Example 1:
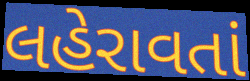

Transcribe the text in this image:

લહેરાવતાં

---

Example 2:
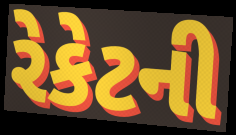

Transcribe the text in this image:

રેકેટની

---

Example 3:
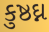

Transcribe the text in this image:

કુષ્ઠઘ્ન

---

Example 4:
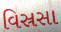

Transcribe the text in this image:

વિસ્રસા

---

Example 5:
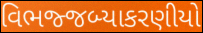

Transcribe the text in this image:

વિભજ્જબ્યાકરણીયો